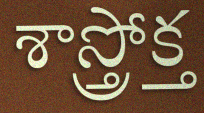
శాస్త్రోక్త